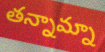
తన్నామ్నా